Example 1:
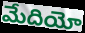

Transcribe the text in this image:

మేదియో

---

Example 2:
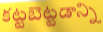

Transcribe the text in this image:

కట్టబెట్టడాన్ని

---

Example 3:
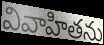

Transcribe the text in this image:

వివాహితను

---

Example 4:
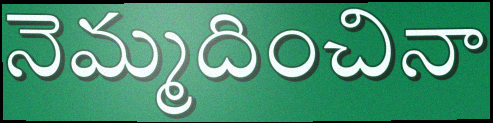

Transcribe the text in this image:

నెమ్మదించినా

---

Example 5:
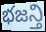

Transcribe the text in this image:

భజన్తి